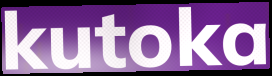
kutoka